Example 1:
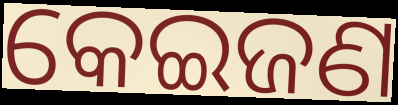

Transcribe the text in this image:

କେଇଜଣ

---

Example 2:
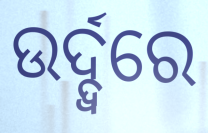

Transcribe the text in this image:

ଉର୍ଦ୍ଦ୍ୱରେ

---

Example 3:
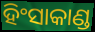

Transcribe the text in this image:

ହିଂସାକାଣ୍ଡ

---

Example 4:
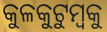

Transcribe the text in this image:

କୁଳକୁଟୁମ୍ବକୁ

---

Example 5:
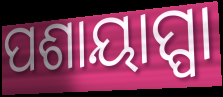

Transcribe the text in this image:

ପଶାୟାପ୍ପା